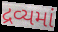
દ્રવ્યમાં